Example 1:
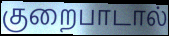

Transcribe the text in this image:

குறைபாடால்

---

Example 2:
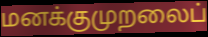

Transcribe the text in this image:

மனக்குமுறலைப்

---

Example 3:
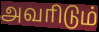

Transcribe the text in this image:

அவரிடும்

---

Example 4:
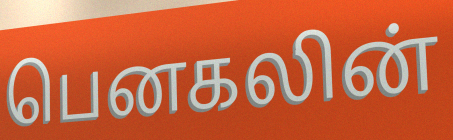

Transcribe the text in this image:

பெனகலின்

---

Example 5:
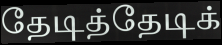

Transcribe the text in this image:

தேடித்தேடிக்